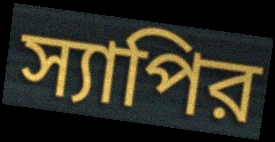
স্যাপির